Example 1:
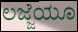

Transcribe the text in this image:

ಲಜ್ಜೆಯೂ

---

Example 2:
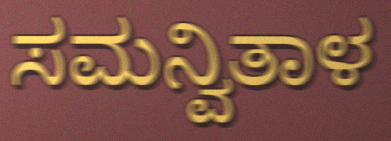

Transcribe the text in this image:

ಸಮನ್ವಿತಾಳ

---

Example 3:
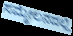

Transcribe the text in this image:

ಸಮ್ಮೇಲನದಲ್ಲಿ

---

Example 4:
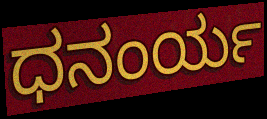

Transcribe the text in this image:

ಧನಂರ್ಯ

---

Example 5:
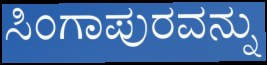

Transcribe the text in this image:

ಸಿಂಗಾಪುರವನ್ನು